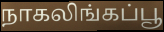
நாகலிங்கப்பூ